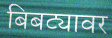
बिबट्यावर